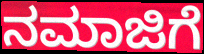
ನಮಾಜಿಗೆ